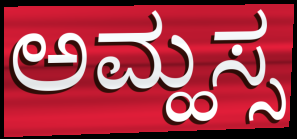
ಅಮ್ಹಸ್ಸ